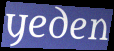
yeden